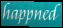
happned